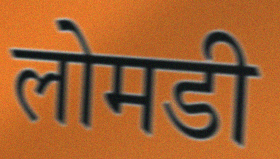
लोमडी